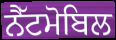
ਨੈੱਟਮੋਬਿਲ